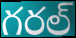
గరల్